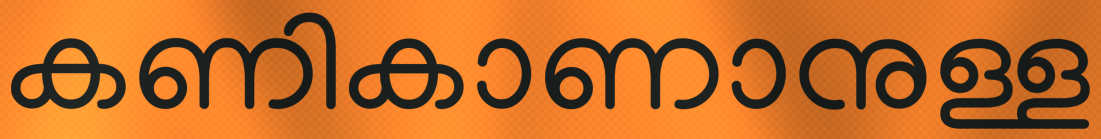
കണികാണാനുള്ള